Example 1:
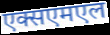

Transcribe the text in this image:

एक्सएमएल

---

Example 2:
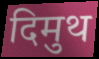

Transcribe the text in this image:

दिमुथ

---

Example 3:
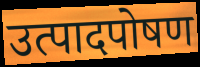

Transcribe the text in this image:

उत्पादपोषण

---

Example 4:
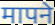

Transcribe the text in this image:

मापने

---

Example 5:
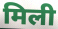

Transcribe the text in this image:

मिली